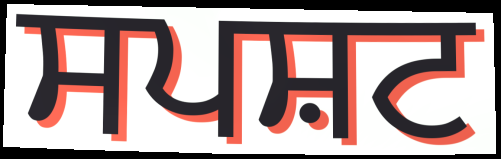
ਸਪਸ਼ਟ